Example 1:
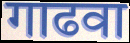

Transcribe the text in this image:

गाढवा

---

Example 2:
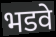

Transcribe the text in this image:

भडवे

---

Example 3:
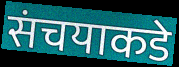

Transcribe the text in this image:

संचयाकडे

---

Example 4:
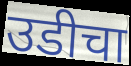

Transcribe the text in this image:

उडीचा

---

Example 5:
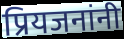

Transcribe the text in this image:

प्रियजनांनी